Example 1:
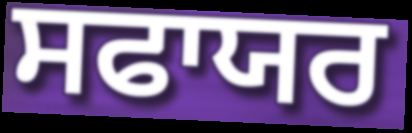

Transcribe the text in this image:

ਸਫਾਯਰ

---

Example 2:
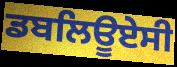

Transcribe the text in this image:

ਡਬਲਿਊਏਸੀ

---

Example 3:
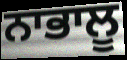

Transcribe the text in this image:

ਨਾਭਾਲੂ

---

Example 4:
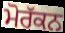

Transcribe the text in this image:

ਮੋਰੱਕਨ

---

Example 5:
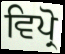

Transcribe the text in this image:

ਵਿਪ੍ਰੋ